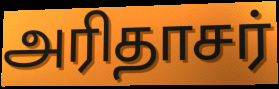
அரிதாசர்